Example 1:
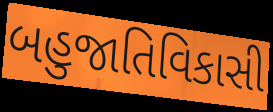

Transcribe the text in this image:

બહુજાતિવિકાસી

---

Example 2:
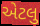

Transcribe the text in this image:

એટલુ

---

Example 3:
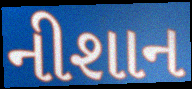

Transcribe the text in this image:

નીશાન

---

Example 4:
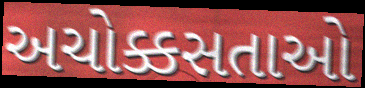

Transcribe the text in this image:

અચોક્કસતાઓ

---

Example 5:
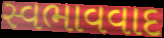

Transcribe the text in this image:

સ્વભાવવાદ